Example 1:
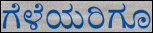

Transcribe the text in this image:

ಗೆಳೆಯರಿಗೂ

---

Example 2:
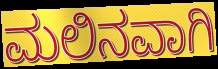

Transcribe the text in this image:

ಮಲಿನವಾಗಿ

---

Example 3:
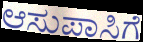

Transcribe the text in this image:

ಆಸುಪಾಸಿಗೆ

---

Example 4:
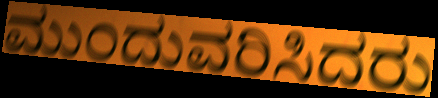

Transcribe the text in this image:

ಮುಂದುವರಿಸಿದರು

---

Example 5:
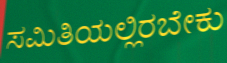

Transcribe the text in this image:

ಸಮಿತಿಯಲ್ಲಿರಬೇಕು